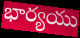
భార్యయు